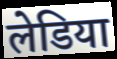
लेडिया